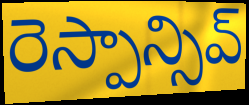
రెస్పాన్సివ్